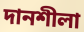
দানশীলা